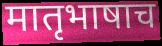
मातृभाषाच